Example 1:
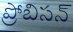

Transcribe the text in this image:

ప్రోబిసన్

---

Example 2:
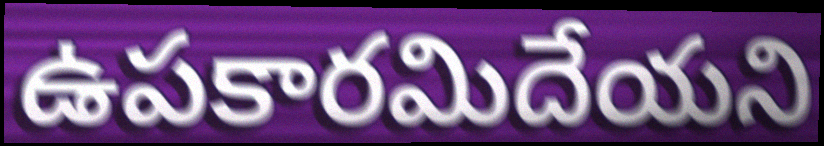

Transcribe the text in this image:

ఉపకారమిదేయని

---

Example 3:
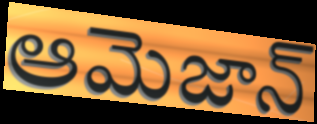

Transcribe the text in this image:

ఆమెజాన్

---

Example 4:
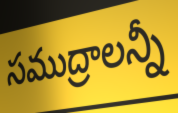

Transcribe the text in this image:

సముద్రాలన్నీ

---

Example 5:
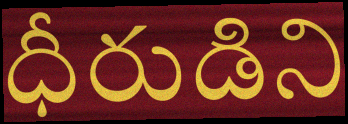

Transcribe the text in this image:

ధీరుడిని